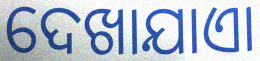
ଦେଖାଯାଏା